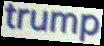
trump